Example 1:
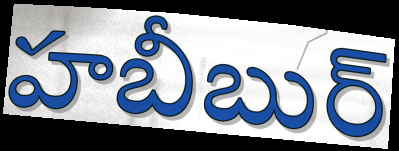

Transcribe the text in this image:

హబీబుర్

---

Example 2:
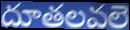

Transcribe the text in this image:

దూతలవలె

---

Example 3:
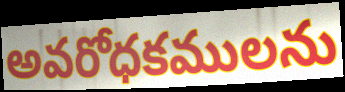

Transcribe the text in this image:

అవరోధకములను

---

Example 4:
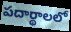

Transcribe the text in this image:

పదార్థాలలో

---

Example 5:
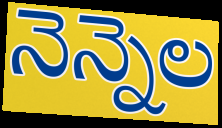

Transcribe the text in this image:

నెన్నెల